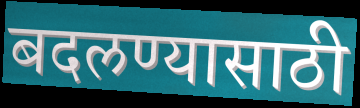
बदलण्यासाठी